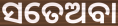
ସତେଅବା